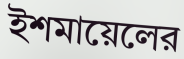
ইশমায়েলের